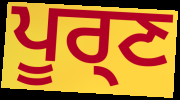
ਪੂਰ੍ਣ